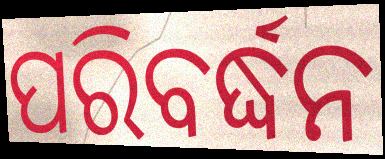
ପରିବର୍ଦ୍ଧନ